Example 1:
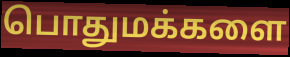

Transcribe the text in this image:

பொதுமக்களை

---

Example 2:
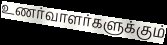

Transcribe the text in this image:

உணர்வாளர்களுக்கும்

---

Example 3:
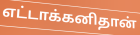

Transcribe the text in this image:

எட்டாக்கனிதான்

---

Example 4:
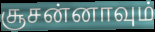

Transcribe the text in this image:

சூசன்னாவும்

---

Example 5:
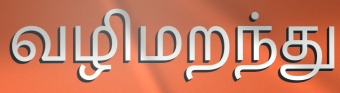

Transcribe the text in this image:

வழிமறந்து